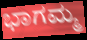
ಭಾಗಮ್ಮ